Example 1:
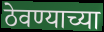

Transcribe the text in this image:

ठेवण्याच्या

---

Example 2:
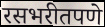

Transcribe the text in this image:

रसभरीतपणे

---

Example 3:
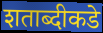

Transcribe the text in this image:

शताब्दीकडे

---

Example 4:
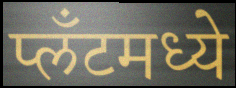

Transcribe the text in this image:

प्लँटमध्ये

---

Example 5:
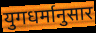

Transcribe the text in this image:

युगधर्मानुसार